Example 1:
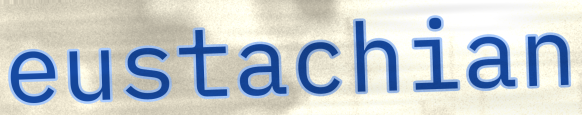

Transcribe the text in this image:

eustachian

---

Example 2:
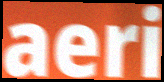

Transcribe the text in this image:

aeri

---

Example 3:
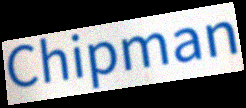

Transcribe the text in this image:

Chipman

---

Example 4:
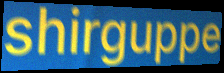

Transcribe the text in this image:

shirguppe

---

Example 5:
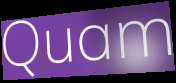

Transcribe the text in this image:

Quam